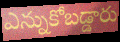
ఎన్నుకోబడ్డారు